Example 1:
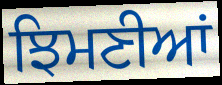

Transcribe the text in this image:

ਝਿਮਣੀਆਂ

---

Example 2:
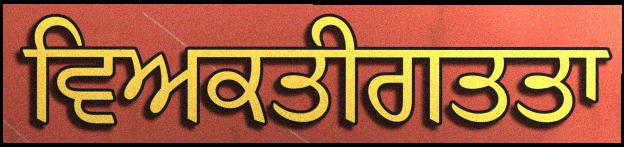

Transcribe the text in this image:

ਵਿਅਕਤੀਗਤਤਾ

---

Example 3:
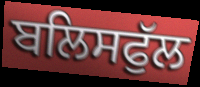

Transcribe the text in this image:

ਬਲਿਸਫੁੱਲ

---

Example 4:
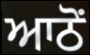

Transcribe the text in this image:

ਆਠੋਂ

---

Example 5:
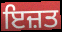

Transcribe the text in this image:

ਇਜ਼ਤ